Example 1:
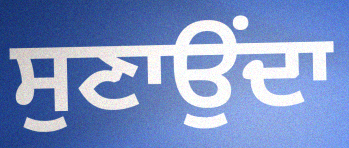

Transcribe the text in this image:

ਸੁਣਾਉਂਦਾ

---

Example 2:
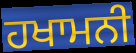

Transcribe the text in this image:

ਹਖਾਮਨੀ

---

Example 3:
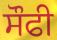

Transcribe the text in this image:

ਸੌਫੀ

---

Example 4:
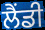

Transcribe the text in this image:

ਲੈਂਡੀ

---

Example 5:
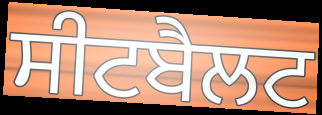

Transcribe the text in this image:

ਸੀਟਬੈਲਟ